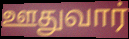
ஊதுவார்